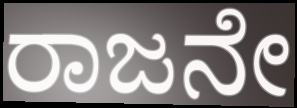
ರಾಜನೇ